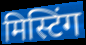
मिस्टिंग